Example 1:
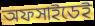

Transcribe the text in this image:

অফসাইডেই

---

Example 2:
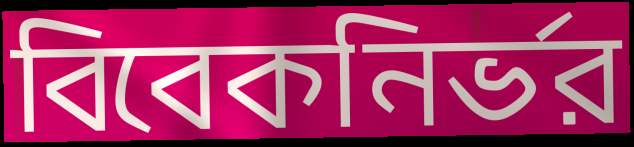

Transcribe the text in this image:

বিবেকনির্ভর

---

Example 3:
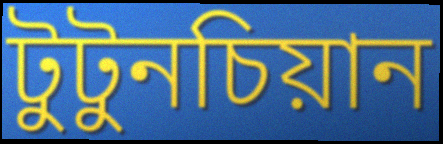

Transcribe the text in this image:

টুটুনচিয়ান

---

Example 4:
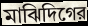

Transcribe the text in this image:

মাঝিদিগের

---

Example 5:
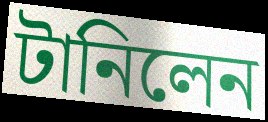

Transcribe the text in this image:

টানিলেন